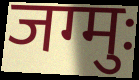
जग्मुः